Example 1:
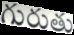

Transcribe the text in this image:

గురుతు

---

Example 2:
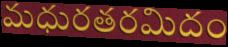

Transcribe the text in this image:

మధురతరమిదం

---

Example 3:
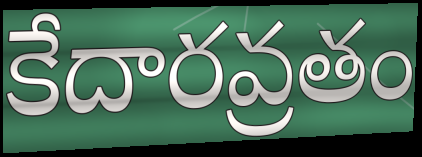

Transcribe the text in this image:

కేదారవ్రతం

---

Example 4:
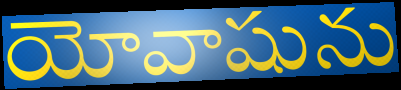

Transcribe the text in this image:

యోవాషును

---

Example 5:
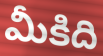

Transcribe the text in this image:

మీకిది